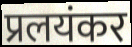
प्रलयंकर